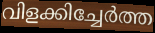
വിളക്കിച്ചേർത്ത